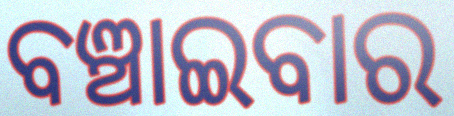
ବଞ୍ଚାଇବାର